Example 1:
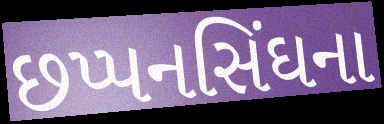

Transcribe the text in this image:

છપ્પનસિંઘના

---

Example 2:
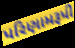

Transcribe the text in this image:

પરિણામરૂપી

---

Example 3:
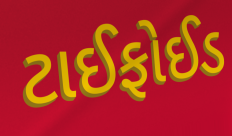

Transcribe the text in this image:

ટાઈફોઈડ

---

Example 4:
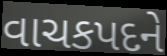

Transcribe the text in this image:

વાચકપદને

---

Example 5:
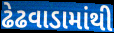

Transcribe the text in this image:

ઢેઢવાડામાંથી